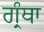
ਗ੍ਰੰਥਾ